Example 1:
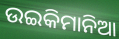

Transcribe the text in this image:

ଉଇକିମାନିଆ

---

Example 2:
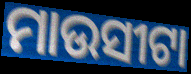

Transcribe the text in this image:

ମାଉସୀଟା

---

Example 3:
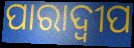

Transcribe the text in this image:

ପାରାଦ୍ୱୀପ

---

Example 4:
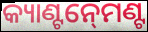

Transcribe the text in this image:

କ୍ୟାଣ୍ଟନ୍‍ମେଣ୍ଟ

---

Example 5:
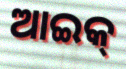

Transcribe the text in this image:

ଆଇକ୍